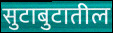
सुटाबुटातील